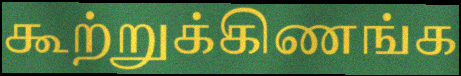
கூற்றுக்கிணங்க